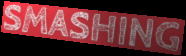
SMASHING